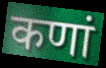
कणां